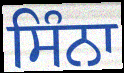
ਸਿੰਨਾ